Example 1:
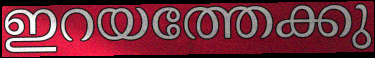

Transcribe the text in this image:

ഇറയത്തേക്കു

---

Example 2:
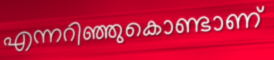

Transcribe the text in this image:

എന്നറിഞ്ഞുകൊണ്ടാണ്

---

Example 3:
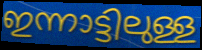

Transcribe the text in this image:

ഇന്നാട്ടിലുള്ള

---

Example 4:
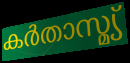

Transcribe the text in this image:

കർതാസ്മ്യ്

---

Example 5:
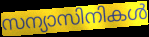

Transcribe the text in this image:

സന്യാസിനികൾ